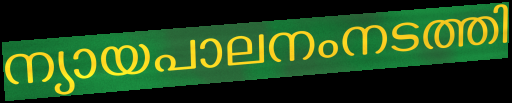
ന്യായപാലനംനടത്തി